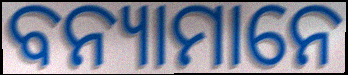
ବନ୍ୟାମାନେ